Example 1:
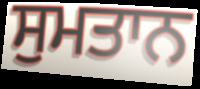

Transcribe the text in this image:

ਸੁਮਤਾਨ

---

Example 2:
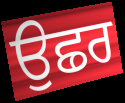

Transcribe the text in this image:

ਉਛਰ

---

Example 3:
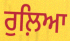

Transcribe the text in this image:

ਰੁਲ਼ਿਆ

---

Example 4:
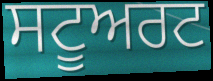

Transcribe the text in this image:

ਸਟੂਅਰਟ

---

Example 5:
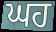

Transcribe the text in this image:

ਘਹ